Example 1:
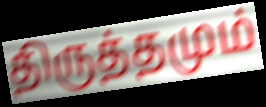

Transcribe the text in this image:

திருத்தமும்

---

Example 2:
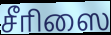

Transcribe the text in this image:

சீரிஸை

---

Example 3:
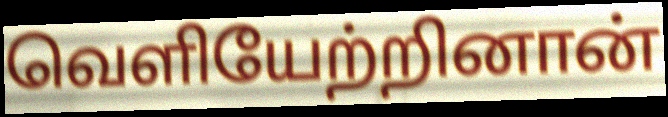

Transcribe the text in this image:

வெளியேற்றினான்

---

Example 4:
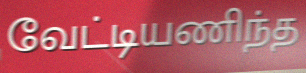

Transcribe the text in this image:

வேட்டியணிந்த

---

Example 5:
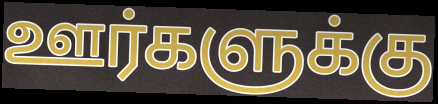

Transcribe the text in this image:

ஊர்களுக்கு